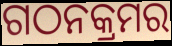
ଗଠନକ୍ରମର